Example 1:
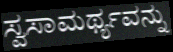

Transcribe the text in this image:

ಸ್ವಸಾಮರ್ಥ್ಯವನ್ನು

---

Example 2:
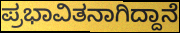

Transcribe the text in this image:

ಪ್ರಭಾವಿತನಾಗಿದ್ದಾನೆ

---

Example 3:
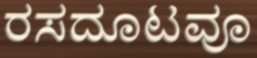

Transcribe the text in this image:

ರಸದೂಟವೂ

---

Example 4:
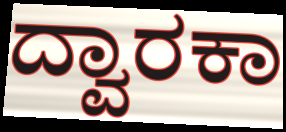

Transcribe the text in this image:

ದ್ವಾರಕಾ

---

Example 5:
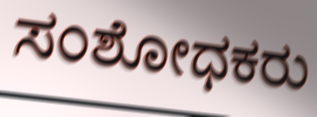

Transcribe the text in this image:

ಸಂಶೋಧಕರು